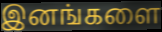
இனங்களை